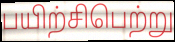
பயிற்சிபெற்று